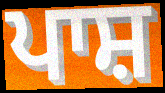
ਪਾਸ਼